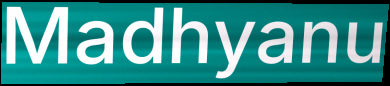
Madhyanu